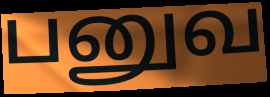
பனுவ